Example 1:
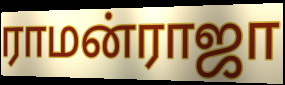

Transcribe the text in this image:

ராமன்ராஜா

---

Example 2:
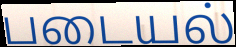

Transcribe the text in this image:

படையல்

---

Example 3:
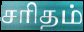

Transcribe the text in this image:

சரிதம்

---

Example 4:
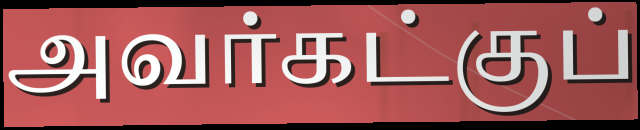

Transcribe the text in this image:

அவர்கட்குப்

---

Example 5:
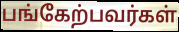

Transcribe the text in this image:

பங்கேற்பவர்கள்